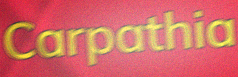
Carpathia